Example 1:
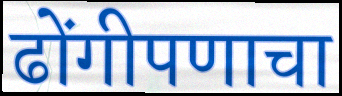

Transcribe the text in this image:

ढोंगीपणाचा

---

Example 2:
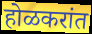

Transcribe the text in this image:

होळकरांत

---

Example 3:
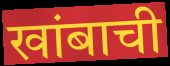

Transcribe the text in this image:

खांबाची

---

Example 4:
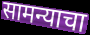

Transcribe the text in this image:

सामन्याचा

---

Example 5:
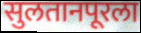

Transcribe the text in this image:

सुलतानपूरला